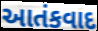
આતંકવાદ